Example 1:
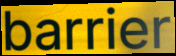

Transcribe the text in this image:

barrier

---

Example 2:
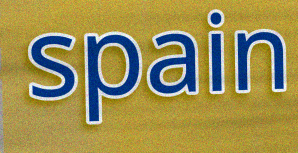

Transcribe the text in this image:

spain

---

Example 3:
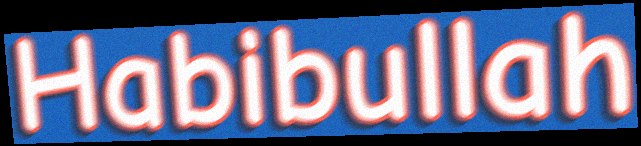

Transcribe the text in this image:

Habibullah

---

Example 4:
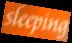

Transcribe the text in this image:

sleeping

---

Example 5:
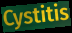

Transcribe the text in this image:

Cystitis